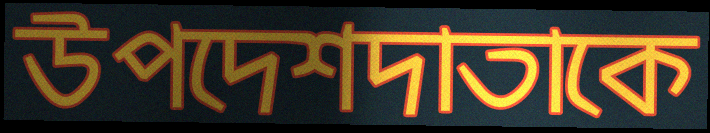
উপদেশদাতাকে